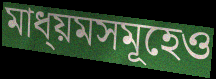
মাধ্য়মসমূহেও